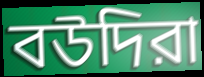
বউদিরা